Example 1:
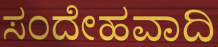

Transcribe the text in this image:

ಸಂದೇಹವಾದಿ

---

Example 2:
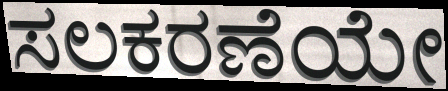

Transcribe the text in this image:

ಸಲಕರಣೆಯೇ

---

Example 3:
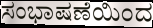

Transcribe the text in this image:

ಸಂಭಾಷಣೆಯಿಂದ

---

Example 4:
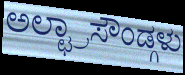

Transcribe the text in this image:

ಅಲ್ಟ್ರಾಸೌಂಡ್ಗಳು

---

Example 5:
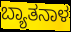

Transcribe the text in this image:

ಬ್ಯಾತನಾಳ